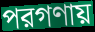
পরগণায়